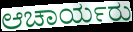
ಆಚಾರ್ಯರು